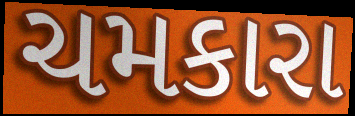
ચમકારા